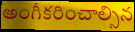
అంగీకరించాల్సిన